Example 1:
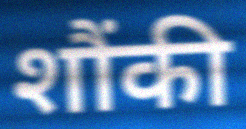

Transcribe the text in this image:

शौंकी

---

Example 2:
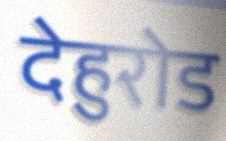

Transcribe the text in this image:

देहुरोड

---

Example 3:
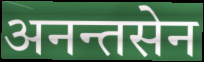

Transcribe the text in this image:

अनन्तसेन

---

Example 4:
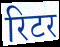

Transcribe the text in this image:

रिटर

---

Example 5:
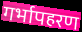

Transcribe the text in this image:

गर्भापहरण